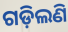
ଗଡ଼ିଲଣି